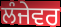
ਲੰਜੇਵਰ